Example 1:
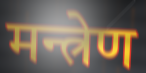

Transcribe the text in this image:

मन्त्रेण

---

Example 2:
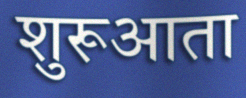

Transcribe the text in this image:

शुरूआता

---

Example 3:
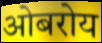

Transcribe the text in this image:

ओबरोय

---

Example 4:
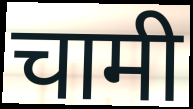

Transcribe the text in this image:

चामी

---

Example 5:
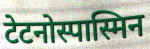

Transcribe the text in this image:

टेटनोस्पास्मिन